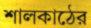
শালকাঠের